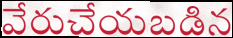
వేరుచేయబడిన